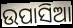
ଉପାସିଆ